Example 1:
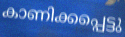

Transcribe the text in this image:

കാണിക്കപ്പെട്ടു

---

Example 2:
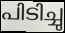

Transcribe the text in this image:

പിടിച്ചു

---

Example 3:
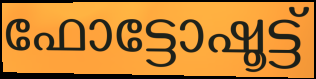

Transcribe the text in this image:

ഫോട്ടോഷൂട്ട്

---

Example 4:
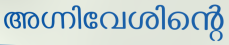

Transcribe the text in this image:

അഗ്നിവേശിന്റെ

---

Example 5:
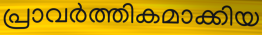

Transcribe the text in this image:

പ്രാവർത്തികമാക്കിയ